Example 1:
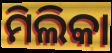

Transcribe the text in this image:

ମିଲିକା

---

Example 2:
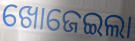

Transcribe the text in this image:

ଖୋଜେଇଲା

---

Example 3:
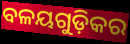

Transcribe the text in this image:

ବଳୟଗୁଡ଼ିକର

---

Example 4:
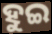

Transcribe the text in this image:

ହୁଇ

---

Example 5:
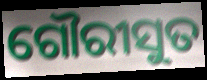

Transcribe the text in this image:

ଗୌରୀସୁତ